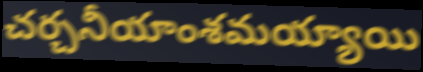
చర్చనీయాంశమయ్యాయి